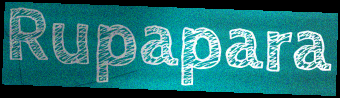
Rupapara